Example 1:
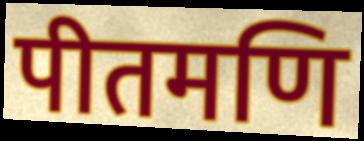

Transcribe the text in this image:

पीतमणि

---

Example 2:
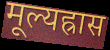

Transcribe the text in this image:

मूल्यह्रास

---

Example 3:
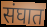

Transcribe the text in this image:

संघात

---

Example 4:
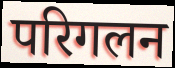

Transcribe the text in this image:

परिगलन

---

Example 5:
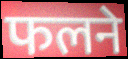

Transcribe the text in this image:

फलने